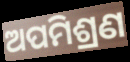
ଅପମିଶ୍ରଣ